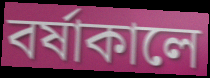
বর্ষাকালে